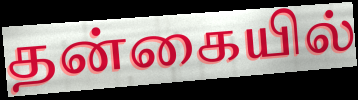
தன்கையில்